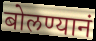
बोलण्यानं